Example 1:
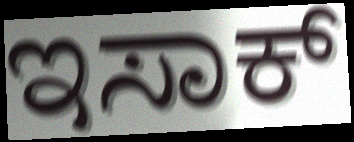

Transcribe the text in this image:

ಇಸಾಕ್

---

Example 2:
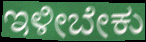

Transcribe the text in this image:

ಇಳೀಬೇಕು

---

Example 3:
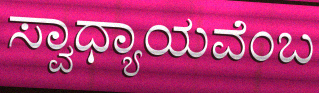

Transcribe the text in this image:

ಸ್ವಾಧ್ಯಾಯವೆಂಬ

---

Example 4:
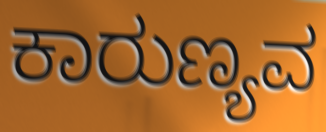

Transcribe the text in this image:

ಕಾರುಣ್ಯವ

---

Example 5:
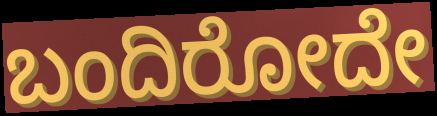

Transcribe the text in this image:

ಬಂದಿರೋದೇ